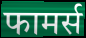
फामर्स